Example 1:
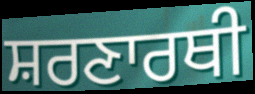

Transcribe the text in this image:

ਸ਼ਰਣਾਰਥੀ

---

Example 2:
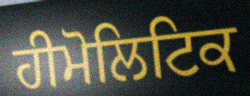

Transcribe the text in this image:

ਹੀਮੋਲਿਟਿਕ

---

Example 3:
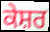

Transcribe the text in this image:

ਕੇਸ਼ਰ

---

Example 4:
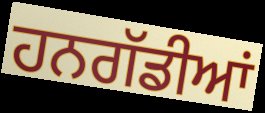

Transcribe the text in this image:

ਹਨਗੱਡੀਆਂ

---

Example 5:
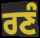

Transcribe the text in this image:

ਰਣੰ